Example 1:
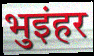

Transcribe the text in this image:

भुइंहर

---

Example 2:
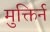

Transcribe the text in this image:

मुक्तिर्न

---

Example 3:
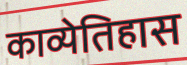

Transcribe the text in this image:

काव्येतिहास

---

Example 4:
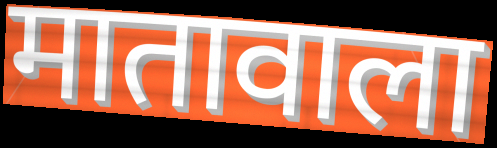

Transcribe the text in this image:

मातावाला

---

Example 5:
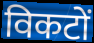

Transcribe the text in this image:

विकटों